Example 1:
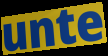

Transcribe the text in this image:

unte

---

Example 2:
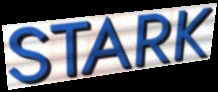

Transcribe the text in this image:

STARK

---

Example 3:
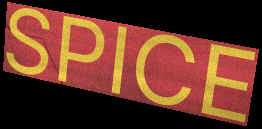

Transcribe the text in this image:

SPICE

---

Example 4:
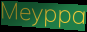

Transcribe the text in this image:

Meyppa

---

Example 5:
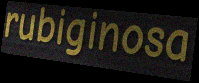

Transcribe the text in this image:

rubiginosa